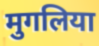
मुगलिया